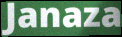
Janaza